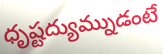
ధృష్టద్యుమ్నుడంటే